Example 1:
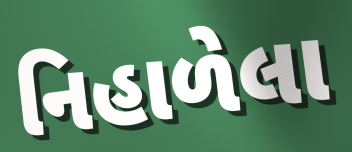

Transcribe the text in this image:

નિહાળેલા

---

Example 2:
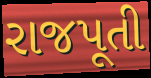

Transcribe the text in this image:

રાજપૂતી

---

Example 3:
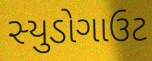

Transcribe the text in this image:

સ્યુડોગાઉટ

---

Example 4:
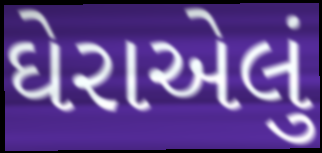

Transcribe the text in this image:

ઘેરાએલું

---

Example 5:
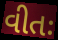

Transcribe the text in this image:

વીતઃ